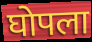
घोपला